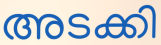
അടക്കി